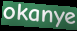
okanye